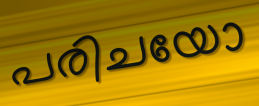
പരിചയോ